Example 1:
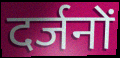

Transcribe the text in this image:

दर्जनों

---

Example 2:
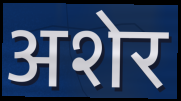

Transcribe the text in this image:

अशेर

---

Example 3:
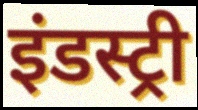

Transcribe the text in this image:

इंडस्ट्री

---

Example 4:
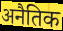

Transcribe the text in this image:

अनैतिक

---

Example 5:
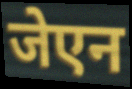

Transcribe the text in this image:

जेएन